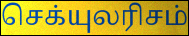
செக்யுலரிசம்